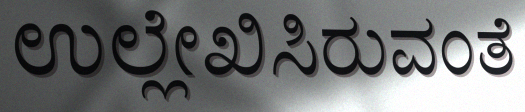
ಉಲ್ಲೇಖಿಸಿರುವಂತೆ